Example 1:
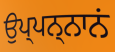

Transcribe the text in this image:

ਉਪ੍ਪਨ੍ਨਾਨਂ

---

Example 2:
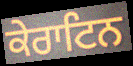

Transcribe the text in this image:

ਕੇਰਾਟਿਨ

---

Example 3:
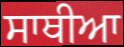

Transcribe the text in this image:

ਸਾਥੀਆ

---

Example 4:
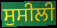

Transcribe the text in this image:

ਸੁਸੀਲੀ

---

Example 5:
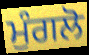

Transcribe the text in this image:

ਮੁੰਗਲੋ